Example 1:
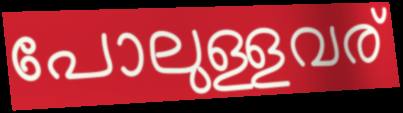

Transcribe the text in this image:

പോലുള്ളവര്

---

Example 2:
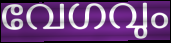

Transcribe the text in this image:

വേഗവും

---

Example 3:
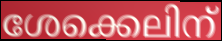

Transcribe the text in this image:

ശേക്കെലിന്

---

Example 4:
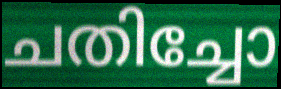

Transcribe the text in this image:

ചതിച്ചോ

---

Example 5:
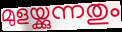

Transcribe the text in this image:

മുളയ്ക്കുന്നതും